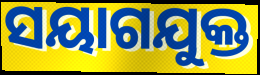
ସୟାଗଯୁକ୍ତ